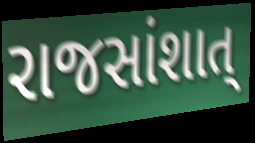
રાજસાંશાત્